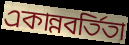
একান্নবর্তিতা